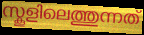
സ്കൂളിലെത്തുന്നത്